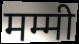
मम्‍मी